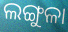
ଲଙ୍ଗୁଳା